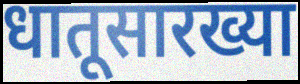
धातूसारख्या